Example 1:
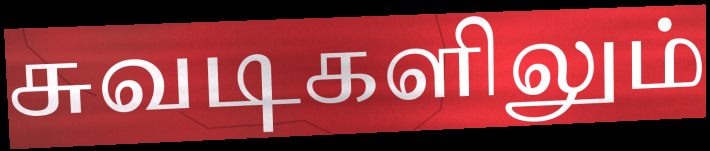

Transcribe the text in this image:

சுவடிகளிலும்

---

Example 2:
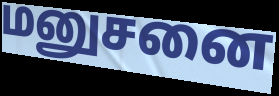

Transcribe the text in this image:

மனுசனை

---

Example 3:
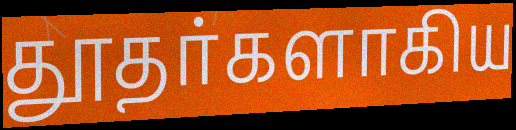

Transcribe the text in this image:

தூதர்களாகிய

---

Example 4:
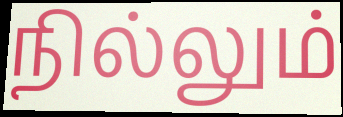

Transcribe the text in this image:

நில்லும்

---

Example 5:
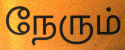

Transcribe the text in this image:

நேரும்